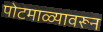
पोटमाळ्यावरून